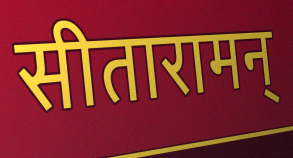
सीतारामन्